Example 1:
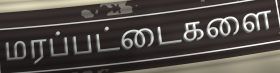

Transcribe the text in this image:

மரப்பட்டைகளை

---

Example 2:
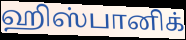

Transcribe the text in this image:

ஹிஸ்பானிக்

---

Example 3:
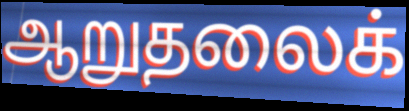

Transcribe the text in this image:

ஆறுதலைக்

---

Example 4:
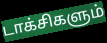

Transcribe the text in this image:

டாக்சிகளும்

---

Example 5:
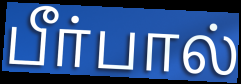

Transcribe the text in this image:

பீர்பால்